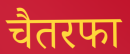
चैतरफा